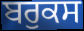
ਬਰੁਕਸ